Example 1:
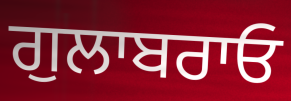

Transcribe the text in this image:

ਗੁਲਾਬਰਾਓ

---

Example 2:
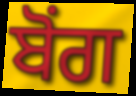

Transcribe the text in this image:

ਬੋਂਗ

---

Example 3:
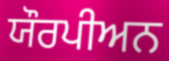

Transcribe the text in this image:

ਯੌਰਪੀਅਨ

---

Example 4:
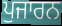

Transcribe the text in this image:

ਪੁਜਾਰਨ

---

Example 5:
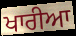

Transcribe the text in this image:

ਖਾਰੀਆ